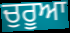
ਚੁਰੂਆ